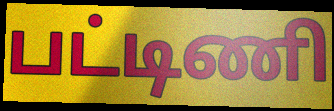
பட்டிணி